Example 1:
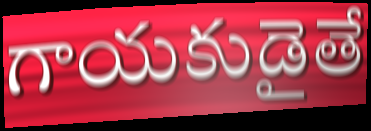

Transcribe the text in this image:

గాయకుడైతే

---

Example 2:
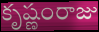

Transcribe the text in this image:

కృష్ణంరాజు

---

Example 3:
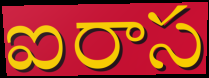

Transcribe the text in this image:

ఐరాస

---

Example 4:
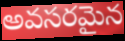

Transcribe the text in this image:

అవసరమైన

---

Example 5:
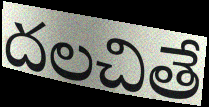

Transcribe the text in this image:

దలచితే